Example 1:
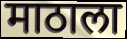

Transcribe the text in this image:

माठाला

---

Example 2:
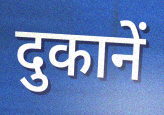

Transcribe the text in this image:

दुकानें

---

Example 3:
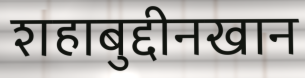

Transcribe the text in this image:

शहाबुद्दीनखान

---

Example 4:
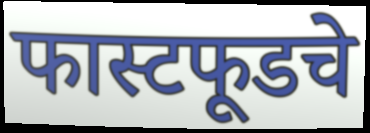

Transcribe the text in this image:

फास्टफूडचे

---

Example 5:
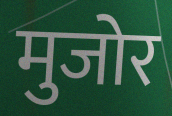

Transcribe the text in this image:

मुजोर